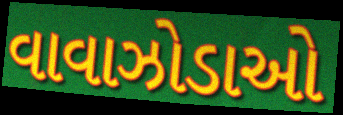
વાવાઝોડાઓ